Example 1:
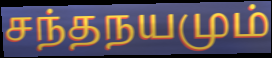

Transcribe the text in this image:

சந்தநயமும்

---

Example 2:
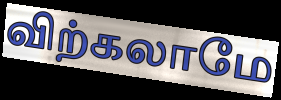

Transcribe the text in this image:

விற்கலாமே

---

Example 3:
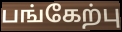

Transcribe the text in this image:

பங்கேற்பு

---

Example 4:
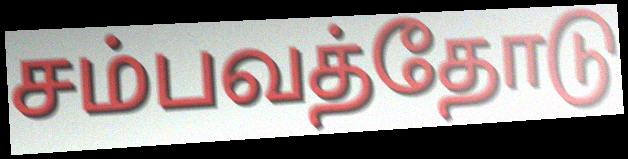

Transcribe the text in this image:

சம்பவத்தோடு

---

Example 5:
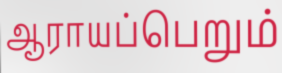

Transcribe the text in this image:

ஆராயப்பெறும்